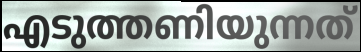
എടുത്തണിയുന്നത്